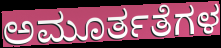
ಅಮೂರ್ತತೆಗಳ